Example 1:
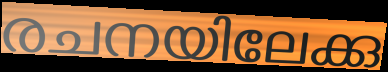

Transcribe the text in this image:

രചനയിലേക്കു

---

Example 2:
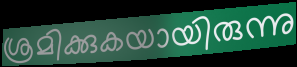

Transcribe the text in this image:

ശ്രമിക്കുകയായിരുന്നു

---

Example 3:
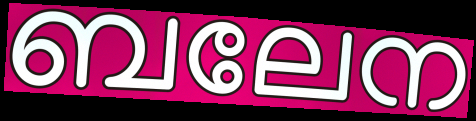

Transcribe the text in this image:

ബലേന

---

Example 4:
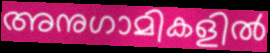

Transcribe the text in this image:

അനുഗാമികളിൽ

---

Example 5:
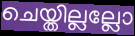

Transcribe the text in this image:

ചെയ്തില്ലല്ലോ